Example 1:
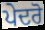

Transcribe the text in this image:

ਪੇਦਰੋ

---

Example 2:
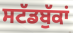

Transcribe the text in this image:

ਸਟੱਡਬੁੱਕਾਂ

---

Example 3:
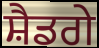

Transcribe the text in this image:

ਸ਼ੈਡਗੇ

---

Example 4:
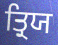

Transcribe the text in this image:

ਤ੍ਰਿਯ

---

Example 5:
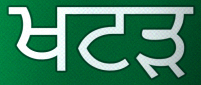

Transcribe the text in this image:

ਖਟੜ